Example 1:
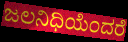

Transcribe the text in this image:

ಜಲನಿಧಿಯೆಂದರೆ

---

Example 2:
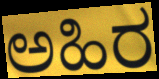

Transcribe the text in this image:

ಅಹಿರ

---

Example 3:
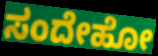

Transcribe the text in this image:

ಸಂದೇಹೋ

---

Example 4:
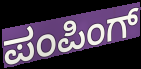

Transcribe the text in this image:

ಪಂಪಿಂಗ್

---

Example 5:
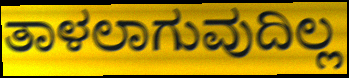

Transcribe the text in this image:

ತಾಳಲಾಗುವುದಿಲ್ಲ